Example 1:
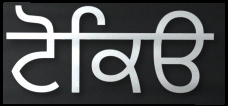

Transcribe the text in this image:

ਟੋਕਿੳ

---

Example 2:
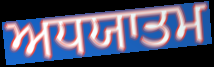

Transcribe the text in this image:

ਅਧਯਾਤਮ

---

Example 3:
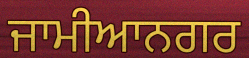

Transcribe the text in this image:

ਜਾਮੀਆਨਗਰ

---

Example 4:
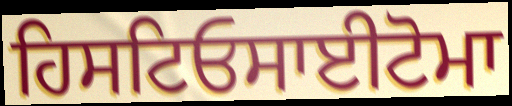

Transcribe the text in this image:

ਹਿਸਟਿਓਸਾਈਟੋਮਾ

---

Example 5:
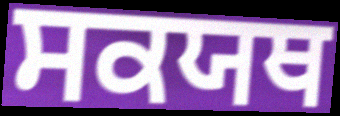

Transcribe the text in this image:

ਸਕਯਥ